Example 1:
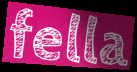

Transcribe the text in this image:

fella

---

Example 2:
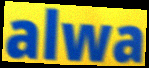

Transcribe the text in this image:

alwa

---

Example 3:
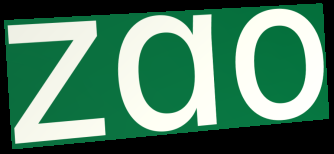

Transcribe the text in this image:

zao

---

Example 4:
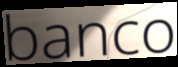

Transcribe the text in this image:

banco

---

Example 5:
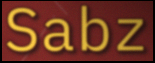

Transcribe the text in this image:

Sabz